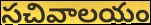
సచివాలయం